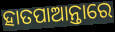
ହାତପାଆନ୍ତାରେ